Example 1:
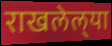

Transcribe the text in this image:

राखलेल्या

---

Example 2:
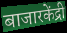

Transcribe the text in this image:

बाजारकेंद्री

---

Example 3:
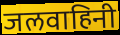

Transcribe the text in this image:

जलवाहिनी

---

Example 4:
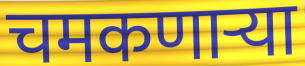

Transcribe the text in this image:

चमकणाऱ्या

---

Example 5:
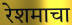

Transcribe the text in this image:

रेशमाचा